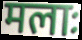
मलाः